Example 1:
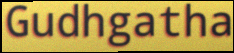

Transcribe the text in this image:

Gudhgatha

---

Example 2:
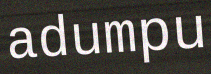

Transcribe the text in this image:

adumpu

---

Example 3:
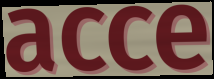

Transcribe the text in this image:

acce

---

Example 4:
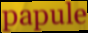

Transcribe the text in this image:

papule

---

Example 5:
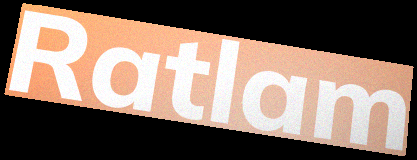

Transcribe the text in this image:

Ratlam